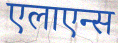
एलाएन्स